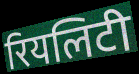
रियलिटी